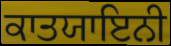
ਕਾਤਯਾਇਨੀ